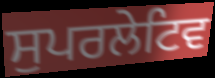
ਸੁਪਰਲੇਟਿਵ